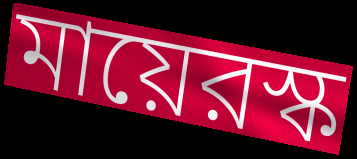
মায়েরস্ক